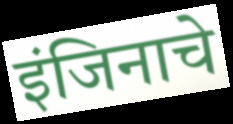
इंजिनाचे